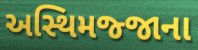
અસ્થિમજ્જાના